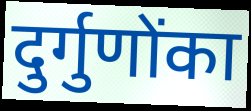
दुर्गुणोंका